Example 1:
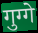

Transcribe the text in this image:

गुग्गे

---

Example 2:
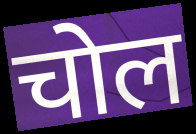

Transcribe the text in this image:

चोल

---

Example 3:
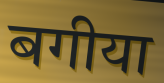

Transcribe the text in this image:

बगीया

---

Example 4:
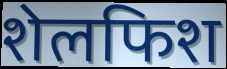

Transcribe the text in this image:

शेलफिश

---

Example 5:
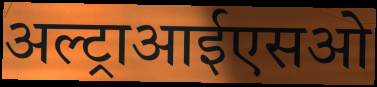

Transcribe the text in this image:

अल्ट्राआईएसओ